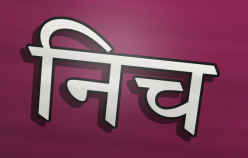
निच